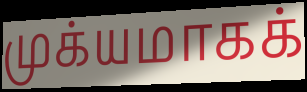
முக்யமாகக்